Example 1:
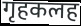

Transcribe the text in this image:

गृहकलह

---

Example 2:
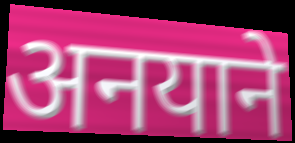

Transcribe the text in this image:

अनयाने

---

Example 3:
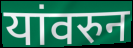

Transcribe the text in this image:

यांवरुन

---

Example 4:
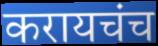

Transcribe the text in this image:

करायचंच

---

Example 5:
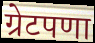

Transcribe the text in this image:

ग्रेटपणा